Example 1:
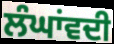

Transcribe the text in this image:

ਲੰਘਾਂਵਦੀ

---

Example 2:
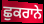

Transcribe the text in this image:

ਛੁਕਰਾਨੇ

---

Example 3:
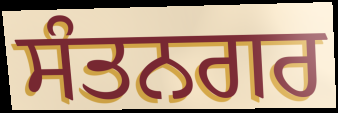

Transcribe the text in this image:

ਸੰਤਨਗਰ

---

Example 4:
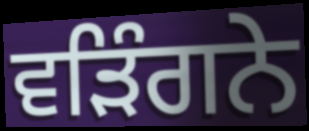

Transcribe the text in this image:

ਵੜਿੰਗਨੇ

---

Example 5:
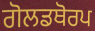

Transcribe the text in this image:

ਗੋਲਡਥੋਰਪ